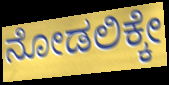
ನೋಡಲಿಕ್ಕೇ